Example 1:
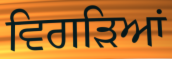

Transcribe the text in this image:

ਵਿਗੜਿਆਂ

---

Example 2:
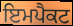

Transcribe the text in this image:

ਇਮਪੈਕਟ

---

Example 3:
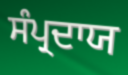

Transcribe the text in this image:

ਸੰਪ੍ਰਦਾਯ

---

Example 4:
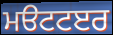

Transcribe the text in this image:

ਮੳਟਟੲਰ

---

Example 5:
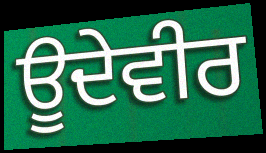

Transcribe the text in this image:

ਊਦੇਵੀਰ